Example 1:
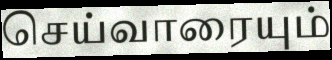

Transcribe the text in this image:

செய்வாரையும்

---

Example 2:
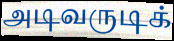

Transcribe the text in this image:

அடிவருடிக்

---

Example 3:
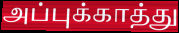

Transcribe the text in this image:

அப்புக்காத்து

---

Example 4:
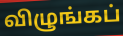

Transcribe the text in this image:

விழுங்கப்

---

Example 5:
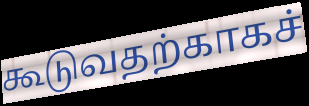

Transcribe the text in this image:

கூடுவதற்காகச்